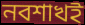
নবশাখই